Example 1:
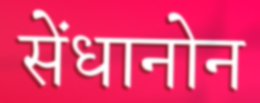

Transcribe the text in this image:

सेंधानोन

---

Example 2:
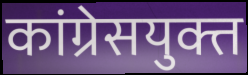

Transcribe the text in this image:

कांग्रेसयुक्त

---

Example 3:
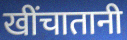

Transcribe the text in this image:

खींचातानी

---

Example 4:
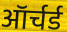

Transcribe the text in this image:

ऑर्चर्ड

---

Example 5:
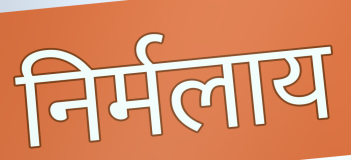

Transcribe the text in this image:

निर्मलाय